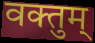
वक्तुम्